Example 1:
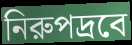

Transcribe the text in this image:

নিরুপদ্রবে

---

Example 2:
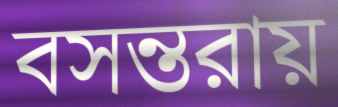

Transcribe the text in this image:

বসন্তরায়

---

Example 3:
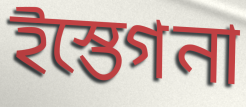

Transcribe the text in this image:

ইস্তেগনা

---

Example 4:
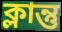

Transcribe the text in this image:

ক্লান্তু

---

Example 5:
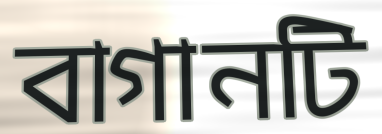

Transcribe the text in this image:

বাগানটি